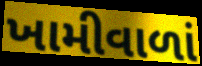
ખામીવાળાં